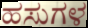
ಹಸುಗಳ